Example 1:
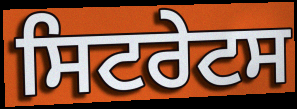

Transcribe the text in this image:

ਸਿਟਰੇਟਸ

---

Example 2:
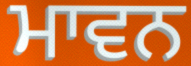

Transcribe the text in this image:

ਮਾਵਨ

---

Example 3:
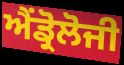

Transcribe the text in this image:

ਐਂਡ੍ਰੋਲੋਜੀ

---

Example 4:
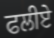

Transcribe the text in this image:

ਫਲੀਏ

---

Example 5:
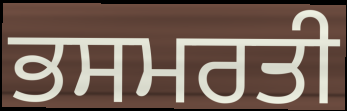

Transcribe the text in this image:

ਭਸਮਰਤੀ